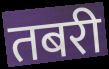
तबरी